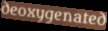
deoxygenated